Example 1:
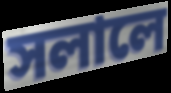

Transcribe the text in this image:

সলালে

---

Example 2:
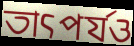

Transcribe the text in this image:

তাৎপৰ্যও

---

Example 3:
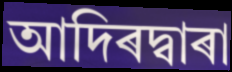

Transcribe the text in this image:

আদিৰদ্বাৰা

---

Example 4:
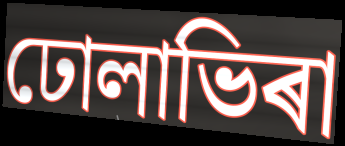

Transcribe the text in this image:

ঢোলাভিৰা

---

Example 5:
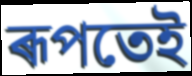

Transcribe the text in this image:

ৰূপতেই